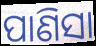
ପାଣିସା